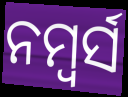
ନମ୍ୱର୍ସ